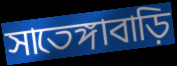
সাতেঙ্গাবাড়ি